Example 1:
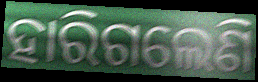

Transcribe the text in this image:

ହାରିଗଲେଣି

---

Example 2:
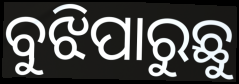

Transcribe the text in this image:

ବୁଝିପାରୁଛୁ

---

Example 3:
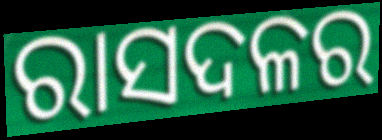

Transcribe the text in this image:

ରାସଦଳର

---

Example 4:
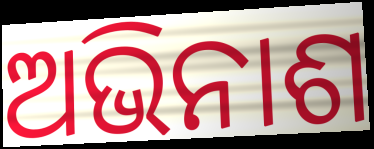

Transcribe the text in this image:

ଅଭିନାଶ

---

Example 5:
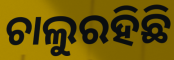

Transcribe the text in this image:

ଚାଲୁରହିଛି